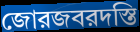
জোরজবরদস্তি